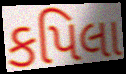
કપિલા